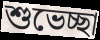
শুভেচ্ছা